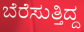
ಬೆರೆಸುತ್ತಿದ್ದ